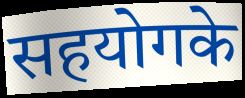
सहयोगके